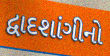
દ્વાદશાંગીનો